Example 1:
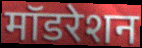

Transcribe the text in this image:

मॉडरेशन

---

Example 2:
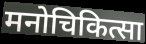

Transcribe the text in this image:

मनोचिकित्सा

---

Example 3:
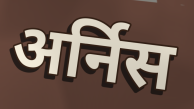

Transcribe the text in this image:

अर्निस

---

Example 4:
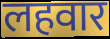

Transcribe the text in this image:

लहवार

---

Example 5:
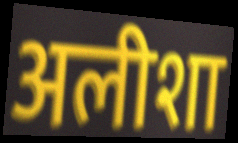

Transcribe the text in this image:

अलीशा